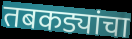
तबकड्यांचा